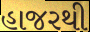
હાજરથી